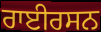
ਰਾਈਰਸਨ